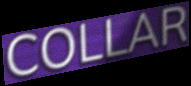
COLLAR